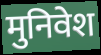
मुनिवेश